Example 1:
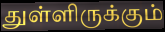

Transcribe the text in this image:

துள்ளிருக்கும்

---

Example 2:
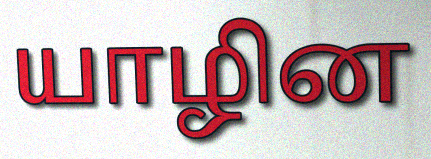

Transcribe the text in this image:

யாழின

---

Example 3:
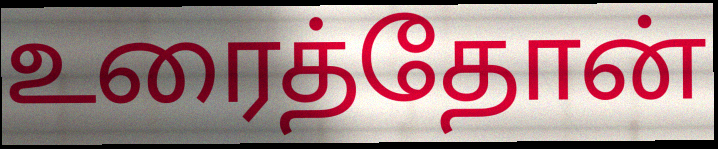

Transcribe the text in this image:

உரைத்தோன்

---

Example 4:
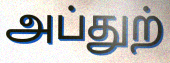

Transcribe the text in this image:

அப்துற்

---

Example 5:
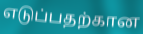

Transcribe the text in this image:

எடுப்பதற்கான